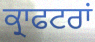
ਕ੍ਰਾਫਟਰਾਂ